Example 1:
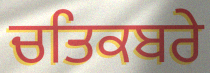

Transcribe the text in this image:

ਚਤਿਕਬਰੇ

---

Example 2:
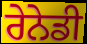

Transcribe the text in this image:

ਰੇਨੇਡੀ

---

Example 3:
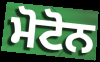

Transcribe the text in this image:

ਮੋਟੋਨ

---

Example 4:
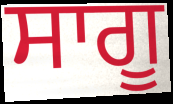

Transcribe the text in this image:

ਸਾਗੂ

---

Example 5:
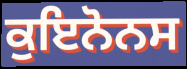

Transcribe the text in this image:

ਕੁਇਨੋਨਸ